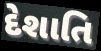
દેશાતિ